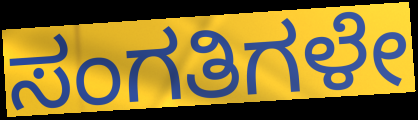
ಸಂಗತಿಗಳೇ